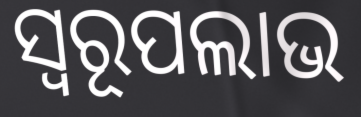
ସ୍ବରୂପଲାଭ